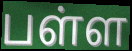
பள்ள